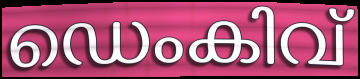
ഡെംകിവ്